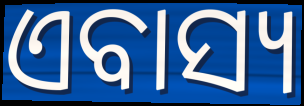
ଏବାସ୍ୟ